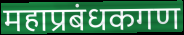
महाप्रबंधकगण